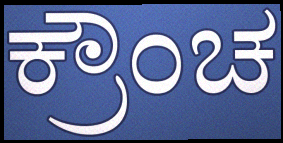
ಕ್ರೌಂಚ